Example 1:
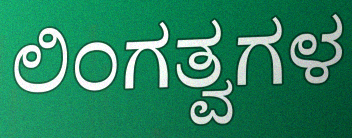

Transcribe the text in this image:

ಲಿಂಗತ್ವಗಳ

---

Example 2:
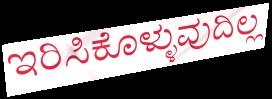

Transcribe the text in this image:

ಇರಿಸಿಕೊಳ್ಳುವುದಿಲ್ಲ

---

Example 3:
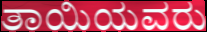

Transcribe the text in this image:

ತಾಯಿಯವರು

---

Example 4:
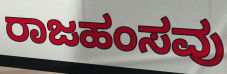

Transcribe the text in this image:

ರಾಜಹಂಸವು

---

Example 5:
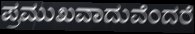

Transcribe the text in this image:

ಪ್ರಮುಖವಾದುವೆಂದರೆ